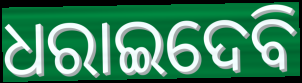
ଧରାଇଦେବି